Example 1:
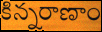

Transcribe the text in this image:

కిన్నరాణాం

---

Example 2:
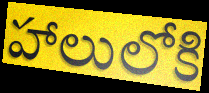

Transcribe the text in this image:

హాలులోకి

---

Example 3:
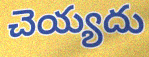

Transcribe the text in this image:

చెయ్యదు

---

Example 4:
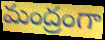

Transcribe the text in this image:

మంద్రంగా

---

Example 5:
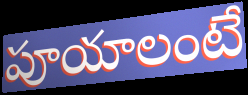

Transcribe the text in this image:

పూయాలంటే